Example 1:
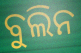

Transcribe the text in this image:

ବୁଲିନ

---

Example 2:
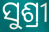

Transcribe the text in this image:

ସୁଶ୍ରୀ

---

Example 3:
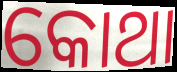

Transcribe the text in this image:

କୋଥା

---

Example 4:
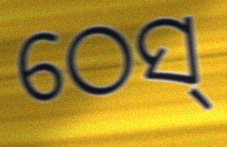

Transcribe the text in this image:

ଠେସ୍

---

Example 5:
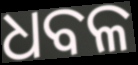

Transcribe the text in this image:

ଧବଳ